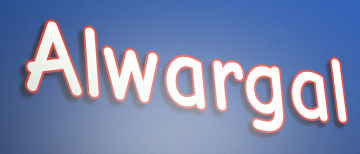
Alwargal